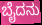
ಬೈದನು